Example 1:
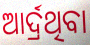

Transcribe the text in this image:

ଆର୍ଦ୍ରଥିବା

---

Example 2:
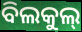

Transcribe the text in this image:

ବିଲକୁଲ୍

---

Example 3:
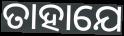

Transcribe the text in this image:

ତାହାଯେ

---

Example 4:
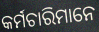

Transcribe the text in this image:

କର୍ମଚାରିମାନେ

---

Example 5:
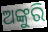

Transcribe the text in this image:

ଅଙ୍କୁରି